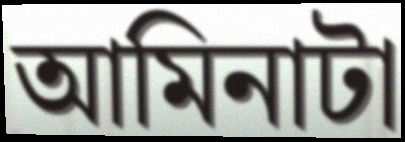
আমিনাটা